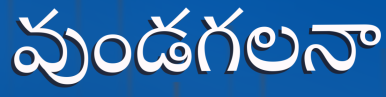
వుండగలనా